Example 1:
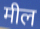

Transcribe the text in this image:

मील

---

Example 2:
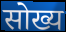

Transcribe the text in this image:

सोख्य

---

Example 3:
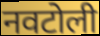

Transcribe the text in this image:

नवटोली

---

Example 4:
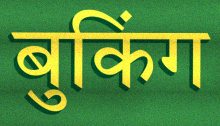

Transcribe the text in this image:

बुकिंग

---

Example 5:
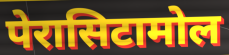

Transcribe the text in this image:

पेरासिटामोल